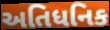
અતિધનિક